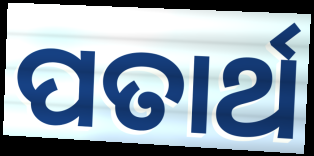
ପତାର୍ଥ